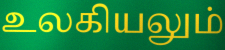
உலகியலும்